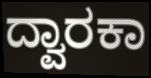
ದ್ವಾರಕಾ